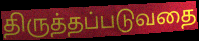
திருத்தப்படுவதை